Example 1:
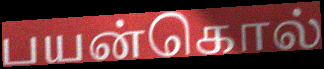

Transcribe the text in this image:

பயன்கொல்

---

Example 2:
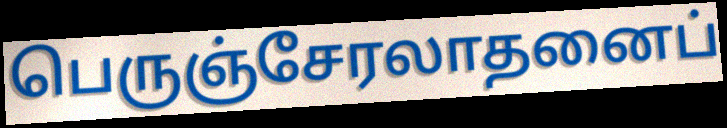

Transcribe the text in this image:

பெருஞ்சேரலாதனைப்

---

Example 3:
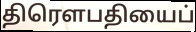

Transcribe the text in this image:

திரெளபதியைப்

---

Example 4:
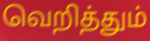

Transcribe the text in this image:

வெறித்தும்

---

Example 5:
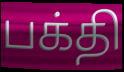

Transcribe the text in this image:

பக்தி